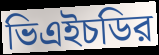
ভিএইচডির